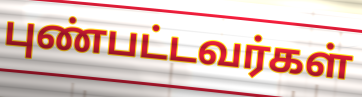
புண்பட்டவர்கள்